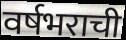
वर्षभराची